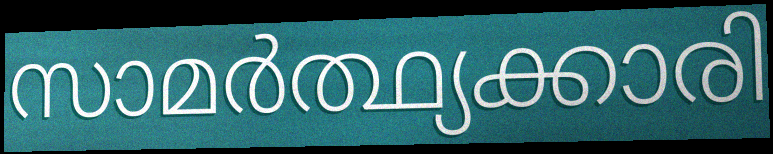
സാമർത്ഥ്യക്കാരി